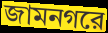
জামনগরে